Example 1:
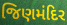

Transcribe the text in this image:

જિણમંદિર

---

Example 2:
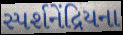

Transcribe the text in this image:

સ્પર્શનેંદ્રિયના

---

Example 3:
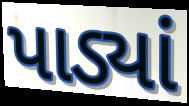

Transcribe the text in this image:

પાડ્યાં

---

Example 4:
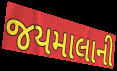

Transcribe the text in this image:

જયમાલાની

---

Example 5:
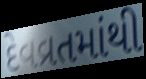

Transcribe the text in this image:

દેવવ્રતમાંથી